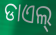
ଡାଏଲ୍